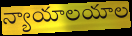
న్యాయాలయాల